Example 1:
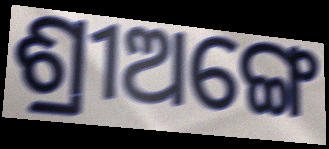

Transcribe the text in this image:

ଶ୍ରୀଅଙ୍ଗେ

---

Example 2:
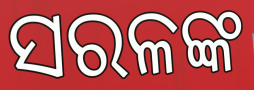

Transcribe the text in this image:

ସରଳଙ୍କ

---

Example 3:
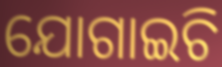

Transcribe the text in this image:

ଯୋଗାଇଚି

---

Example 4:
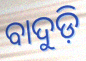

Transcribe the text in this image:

ବାଦୁଡ଼ି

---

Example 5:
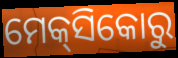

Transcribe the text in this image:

ମେକ୍‌ସିକୋରୁ